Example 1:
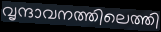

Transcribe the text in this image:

വൃന്ദാവനത്തിലെത്തി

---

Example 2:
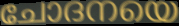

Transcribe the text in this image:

ചോദനയെ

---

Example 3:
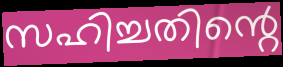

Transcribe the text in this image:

സഹിച്ചതിന്റെ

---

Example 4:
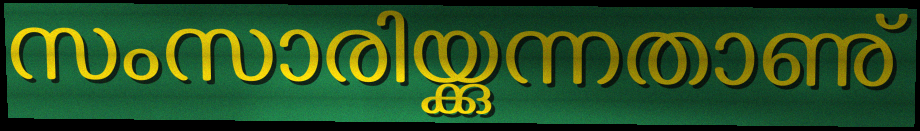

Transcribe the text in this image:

സംസാരിയ്ക്കുന്നതാണു്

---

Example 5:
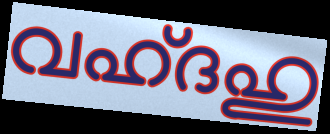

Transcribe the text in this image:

വഹ്ദഹു